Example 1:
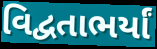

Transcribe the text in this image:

વિદ્વતાભર્યાં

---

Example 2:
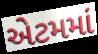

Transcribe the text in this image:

એટમમાં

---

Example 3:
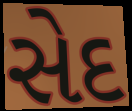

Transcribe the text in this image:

સેદ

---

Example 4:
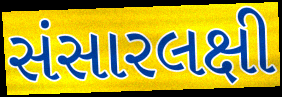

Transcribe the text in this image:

સંસારલક્ષી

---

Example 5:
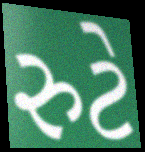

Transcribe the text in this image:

રુટે